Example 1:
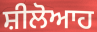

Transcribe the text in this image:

ਸ਼ੀਲੋਆਹ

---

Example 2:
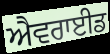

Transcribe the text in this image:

ਐਵਰਾਈਡ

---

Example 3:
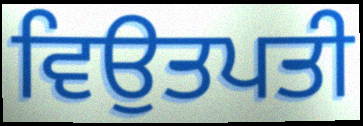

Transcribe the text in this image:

ਵਿਉਤਪਤੀ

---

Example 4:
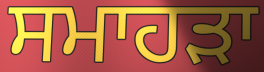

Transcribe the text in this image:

ਸਮਾਹੜਾ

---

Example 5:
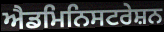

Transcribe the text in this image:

ਐਡਮਿਨਿਸਟਰੇਸ਼ਨ